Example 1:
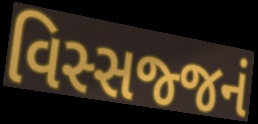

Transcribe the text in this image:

વિસ્સજ્જનં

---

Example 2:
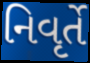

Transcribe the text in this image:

નિવૃર્તે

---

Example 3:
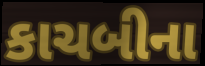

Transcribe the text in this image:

કાચબીના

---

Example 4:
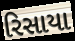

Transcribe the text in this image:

રિસાયા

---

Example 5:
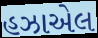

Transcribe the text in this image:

હઝાએલ